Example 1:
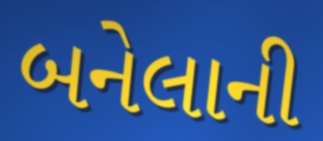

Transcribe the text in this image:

બનેલાની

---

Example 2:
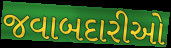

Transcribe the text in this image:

જવાબદારીઓ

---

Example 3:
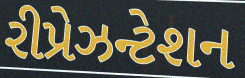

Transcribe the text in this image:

રીપ્રેઝન્ટેશન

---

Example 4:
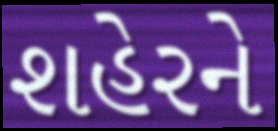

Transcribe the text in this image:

શહેરને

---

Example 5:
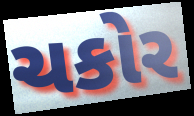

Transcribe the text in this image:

ચકોર